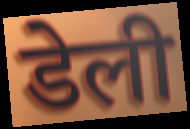
डेली